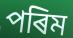
পৰিম